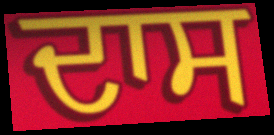
ਦਾਸ